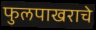
फुलपाखराचे